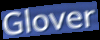
Glover